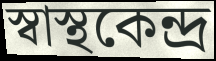
স্বাস্থকেন্দ্র